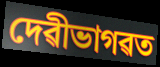
দেৱীভাগৱত